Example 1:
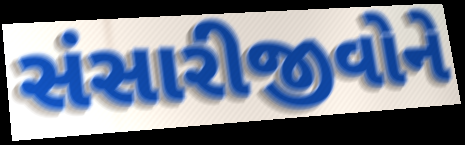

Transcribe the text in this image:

સંસારીજીવોને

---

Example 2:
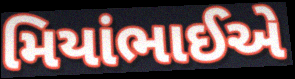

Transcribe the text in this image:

મિયાંભાઈએ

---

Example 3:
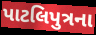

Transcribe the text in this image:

પાટલિપુત્રના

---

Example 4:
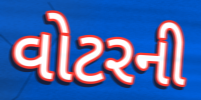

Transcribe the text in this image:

વોટરની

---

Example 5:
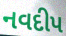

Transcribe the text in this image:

નવદીપ